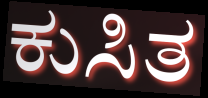
ಕುಸಿತ